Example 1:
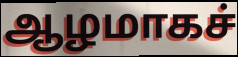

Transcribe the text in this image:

ஆழமாகச்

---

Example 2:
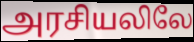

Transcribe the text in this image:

அரசியலிலே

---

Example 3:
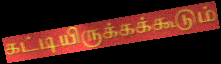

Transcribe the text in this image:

கட்டியிருக்கக்கூடும்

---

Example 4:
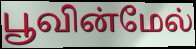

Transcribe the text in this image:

பூவின்மேல்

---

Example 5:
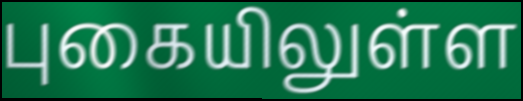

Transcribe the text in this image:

புகையிலுள்ள